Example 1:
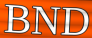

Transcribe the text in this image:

BND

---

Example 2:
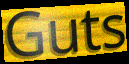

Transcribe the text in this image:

Guts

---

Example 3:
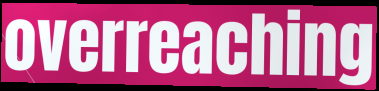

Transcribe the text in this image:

overreaching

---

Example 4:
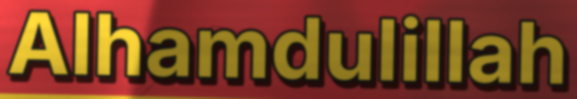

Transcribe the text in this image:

Alhamdulillah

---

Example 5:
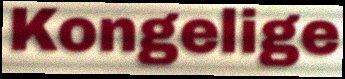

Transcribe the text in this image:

Kongelige